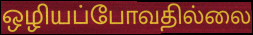
ஒழியப்போவதில்லை